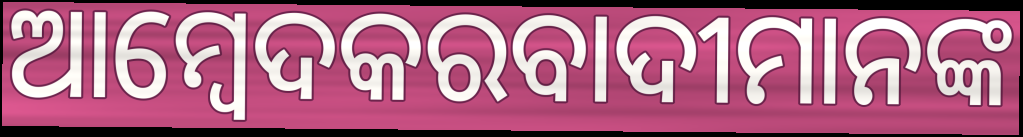
ଆମ୍ବେଦକରବାଦୀମାନଙ୍କ